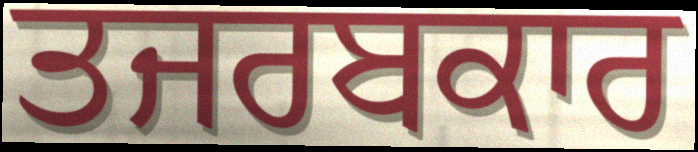
ਤਜਰਬਕਾਰ